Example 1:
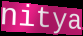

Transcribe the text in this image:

nitya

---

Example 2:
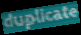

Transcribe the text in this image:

duplicate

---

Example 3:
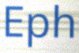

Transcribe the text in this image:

Eph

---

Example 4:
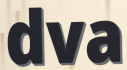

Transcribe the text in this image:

dva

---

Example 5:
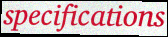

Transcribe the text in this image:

specifications